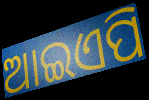
ଆଇଏପି